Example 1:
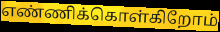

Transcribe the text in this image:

எண்ணிக்கொள்கிறோம்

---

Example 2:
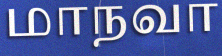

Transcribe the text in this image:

மாநவா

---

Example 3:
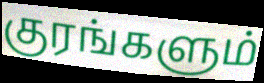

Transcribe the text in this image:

குரங்களும்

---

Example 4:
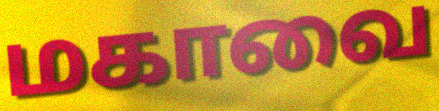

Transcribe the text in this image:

மகாவை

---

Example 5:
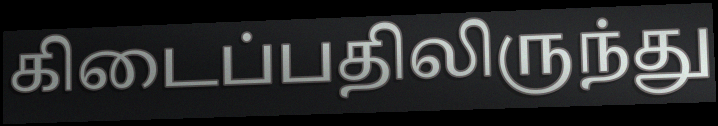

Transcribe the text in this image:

கிடைப்பதிலிருந்து